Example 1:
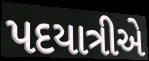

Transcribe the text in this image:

પદયાત્રીએ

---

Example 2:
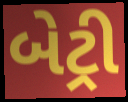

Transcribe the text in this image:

બેટ્રી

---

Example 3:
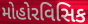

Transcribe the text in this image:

મોહોરવિસિક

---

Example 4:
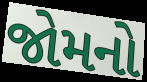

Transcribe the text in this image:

જોમનો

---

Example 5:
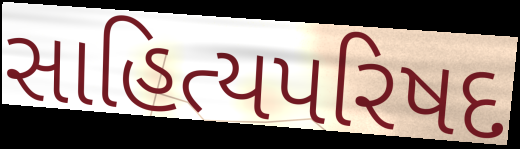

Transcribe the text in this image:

સાહિત્યપરિષદ